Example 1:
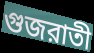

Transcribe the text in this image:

গুজরাতী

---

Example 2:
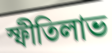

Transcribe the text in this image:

স্ফীতিলাভ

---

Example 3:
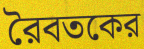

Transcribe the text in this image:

রৈবতকের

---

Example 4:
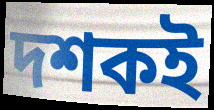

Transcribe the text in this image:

দশকই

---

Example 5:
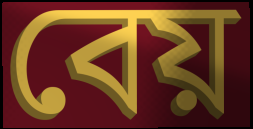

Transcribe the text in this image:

বেয়